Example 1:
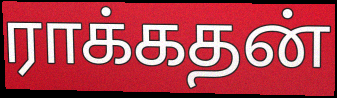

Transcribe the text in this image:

ராக்கதன்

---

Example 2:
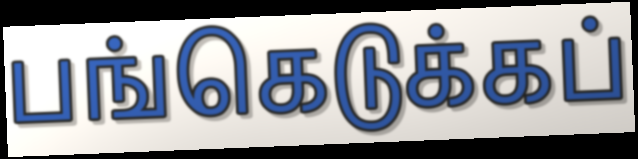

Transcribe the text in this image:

பங்கெடுக்கப்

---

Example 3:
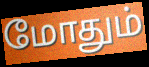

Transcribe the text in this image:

மோதும்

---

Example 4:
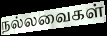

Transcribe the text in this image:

நல்லவைகள்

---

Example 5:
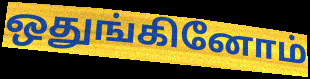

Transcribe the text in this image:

ஒதுங்கினோம்